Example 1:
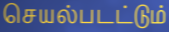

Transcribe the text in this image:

செயல்படட்டும்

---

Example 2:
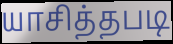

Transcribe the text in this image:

யாசித்தபடி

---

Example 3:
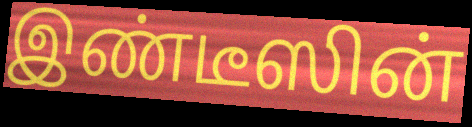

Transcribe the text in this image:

இண்டீஸின்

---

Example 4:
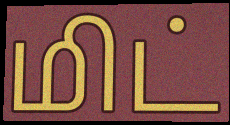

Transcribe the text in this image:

மிட்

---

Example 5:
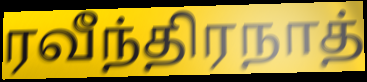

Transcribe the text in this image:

ரவீந்திரநாத்